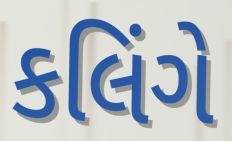
કલિંગે